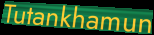
Tutankhamun